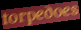
torpedoes